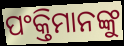
ପଂକ୍ତିମାନଙ୍କୁ